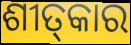
ଶୀତ୍‌କାର